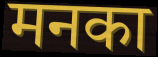
मनका